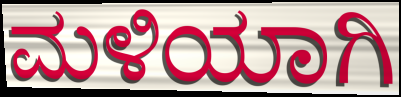
ಮಳಿಯಾಗಿ